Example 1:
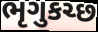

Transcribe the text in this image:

ભૃગુકચ્છ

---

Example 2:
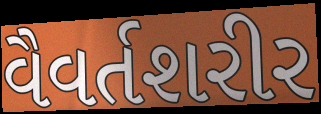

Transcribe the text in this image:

વૈવર્તશરીર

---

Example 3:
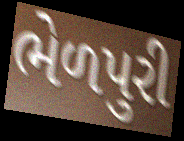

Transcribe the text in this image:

ભેળપુરી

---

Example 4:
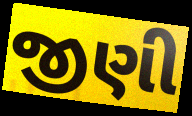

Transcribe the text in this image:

જીણી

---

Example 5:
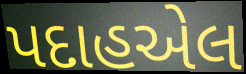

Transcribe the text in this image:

પદાહએલ